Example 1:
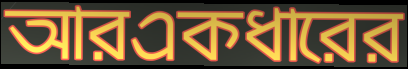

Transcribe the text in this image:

আরএকধারের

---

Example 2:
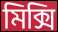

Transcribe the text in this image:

মিক্সি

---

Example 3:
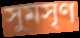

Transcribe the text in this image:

সুমসৃণ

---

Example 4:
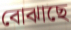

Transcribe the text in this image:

বোঝাছে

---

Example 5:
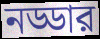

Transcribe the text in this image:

নড্ডার